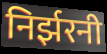
निर्झरनी